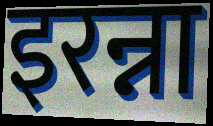
इरन्ना